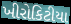
ખીરોકિટીયા